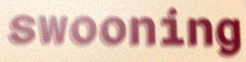
swooning